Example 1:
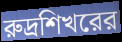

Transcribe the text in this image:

রুদ্রশিখরের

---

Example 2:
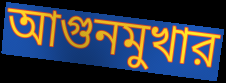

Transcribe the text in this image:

আগুনমুখার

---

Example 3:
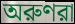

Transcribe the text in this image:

অরুণরা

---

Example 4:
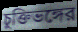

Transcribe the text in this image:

চুক্তিভঙ্গের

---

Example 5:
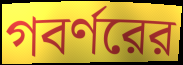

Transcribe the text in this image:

গবর্ণরের